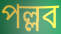
পল্লব